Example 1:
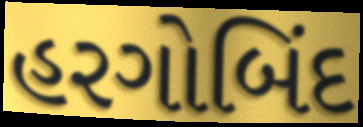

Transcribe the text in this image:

હરગોબિંદ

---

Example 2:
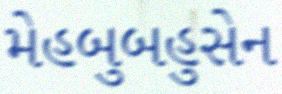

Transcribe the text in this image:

મેહબુબહુસેન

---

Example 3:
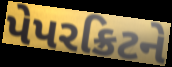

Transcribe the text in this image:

પેપરક્રિટને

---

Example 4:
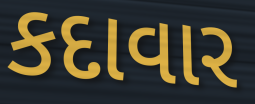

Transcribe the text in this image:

કદાવાર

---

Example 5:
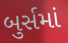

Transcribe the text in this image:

બુર્સમાં